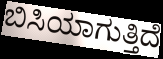
ಬಿಸಿಯಾಗುತ್ತಿದೆ